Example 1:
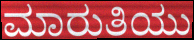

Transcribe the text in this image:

ಮಾರುತಿಯು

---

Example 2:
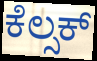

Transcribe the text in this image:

ಕೆಲ್ಸಕ್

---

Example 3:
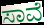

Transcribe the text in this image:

ಸಾವೆ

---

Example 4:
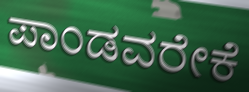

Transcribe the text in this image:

ಪಾಂಡವರೇಕೆ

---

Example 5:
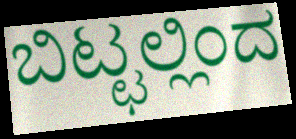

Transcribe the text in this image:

ಬಿಟ್ಟಲ್ಲಿಂದ